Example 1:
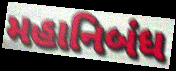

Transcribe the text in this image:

મહાનિબંધ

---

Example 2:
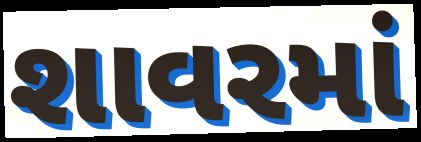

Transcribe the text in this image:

શાવરમાં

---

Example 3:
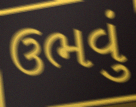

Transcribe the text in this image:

ઉભવું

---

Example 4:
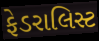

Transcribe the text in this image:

ફેડરાલિસ્ટ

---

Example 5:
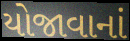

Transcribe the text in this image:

યોજાવાનાં